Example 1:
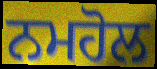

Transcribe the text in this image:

ਨਮਹੋਲ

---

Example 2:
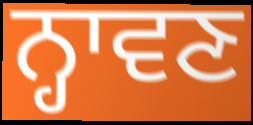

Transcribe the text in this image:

ਨ੍ਹਾਵਣ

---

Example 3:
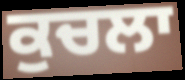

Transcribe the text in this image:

ਕੁਚਲਾ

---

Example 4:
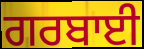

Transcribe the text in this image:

ਗਰਬਾਈ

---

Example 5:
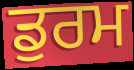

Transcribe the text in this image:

ਡੁਰਮ